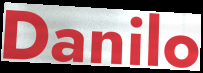
Danilo